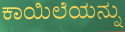
ಕಾಯಿಲೆಯನ್ನು